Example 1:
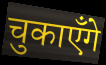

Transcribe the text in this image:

चुकाएँगे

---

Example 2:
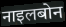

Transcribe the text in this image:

नाइलबोन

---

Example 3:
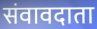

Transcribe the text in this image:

संवावदाता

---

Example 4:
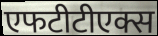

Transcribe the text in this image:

एफटीटीएक्स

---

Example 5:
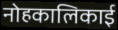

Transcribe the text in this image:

नोहकालिकाई